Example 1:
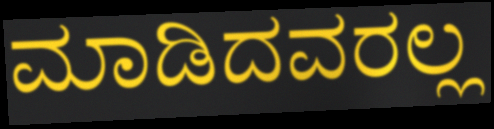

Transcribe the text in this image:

ಮಾಡಿದವರಲ್ಲ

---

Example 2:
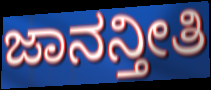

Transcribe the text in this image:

ಜಾನನ್ತೀತಿ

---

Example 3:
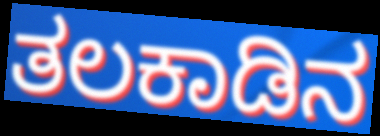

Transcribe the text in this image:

ತಲಕಾಡಿನ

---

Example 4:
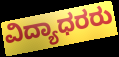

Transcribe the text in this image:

ವಿದ್ಯಾಧರರು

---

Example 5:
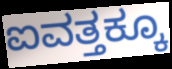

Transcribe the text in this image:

ಐವತ್ತಕ್ಕೂ